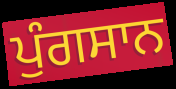
ਪੁੰਗਸਾਨ